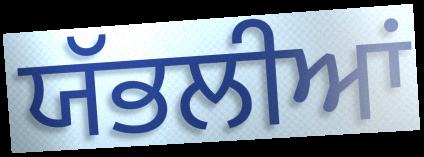
ਯੱਭਲੀਆਂ